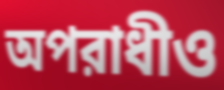
অপরাধীও